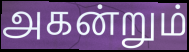
அகன்றும்